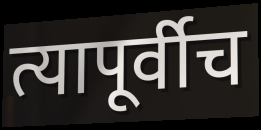
त्यापूर्वीच